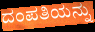
ದಂಪತಿಯನ್ನು